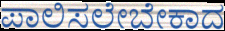
ಪಾಲಿಸಲೇಬೇಕಾದ